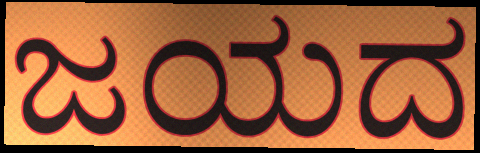
ಜಯದ